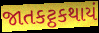
જાતકટ્ઠકથાયં